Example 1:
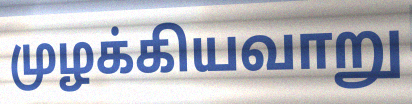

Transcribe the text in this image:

முழக்கியவாறு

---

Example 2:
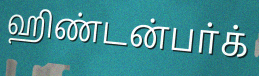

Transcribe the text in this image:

ஹிண்டன்பர்க்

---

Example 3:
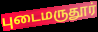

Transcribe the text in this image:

புடைமருதூர்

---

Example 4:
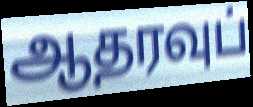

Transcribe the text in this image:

ஆதரவுப்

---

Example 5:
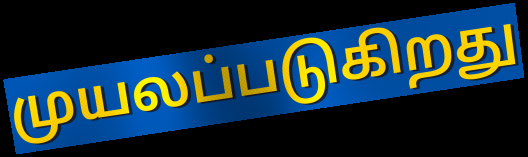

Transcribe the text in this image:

முயலப்படுகிறது